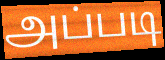
அப்படி